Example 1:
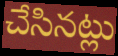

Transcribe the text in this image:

చేసినట్లు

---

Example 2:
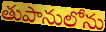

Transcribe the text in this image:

తుపానులోను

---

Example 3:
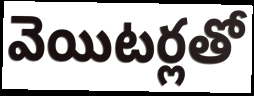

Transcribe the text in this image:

వెయిటర్లతో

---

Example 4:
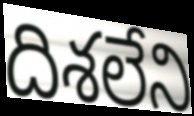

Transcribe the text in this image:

దిశలేని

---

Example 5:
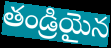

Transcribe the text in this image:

తండ్రియైన